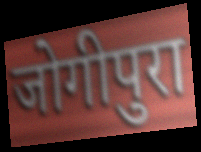
जोगीपुरा